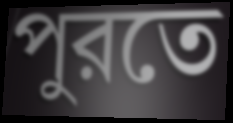
পুরতে